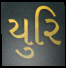
યુરિ